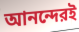
আনন্দেরই